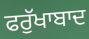
ਫਰੁੱਖਾਬਾਦ